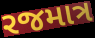
રજમાત્ર